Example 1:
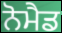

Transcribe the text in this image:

ਨੋਮੈਡ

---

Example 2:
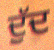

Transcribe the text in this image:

ਦੁੱਦ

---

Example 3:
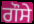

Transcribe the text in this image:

ਗੌਸੇ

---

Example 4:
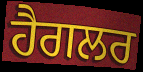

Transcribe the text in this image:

ਹੈਗਲਰ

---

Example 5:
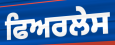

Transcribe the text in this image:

ਫਿਅਰਲੇਸ